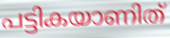
പട്ടികയാണിത്